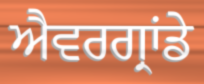
ਐਵਰਗ੍ਰਾਂਡੇ